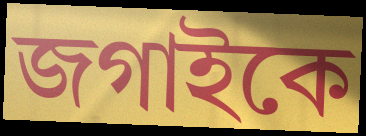
জগাইকে